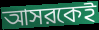
আসরকেই